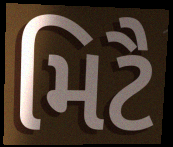
મિટૈ